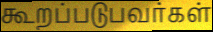
கூறப்படுபவர்கள்